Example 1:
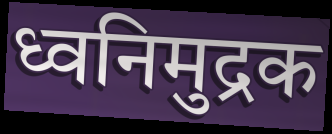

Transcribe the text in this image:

ध्वनिमुद्रक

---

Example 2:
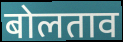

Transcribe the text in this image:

बोलताव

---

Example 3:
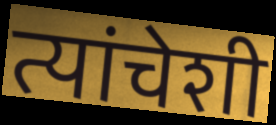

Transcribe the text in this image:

त्यांचेशी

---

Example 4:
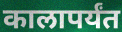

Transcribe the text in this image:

कालापर्यंत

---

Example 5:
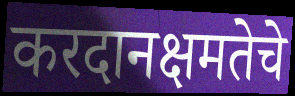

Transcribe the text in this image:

करदानक्षमतेचे